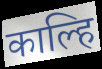
काल्हि